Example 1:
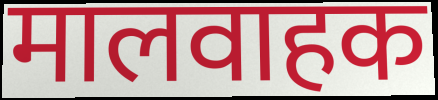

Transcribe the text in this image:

मालवाहक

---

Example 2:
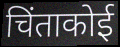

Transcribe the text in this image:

चिंताकोई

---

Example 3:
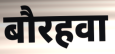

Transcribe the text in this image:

बौरहवा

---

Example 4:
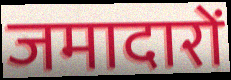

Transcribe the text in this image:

जमादारों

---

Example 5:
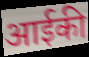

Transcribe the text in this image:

आईकी